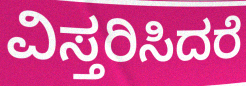
ವಿಸ್ತರಿಸಿದರೆ